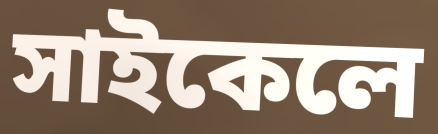
সাইকেলে